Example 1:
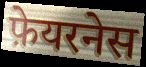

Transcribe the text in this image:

फ़ेयरनेस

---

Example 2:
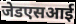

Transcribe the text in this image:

जेडएसआई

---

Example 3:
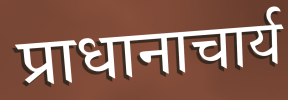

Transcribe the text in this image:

प्राधानाचार्य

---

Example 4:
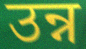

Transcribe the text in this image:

उन्न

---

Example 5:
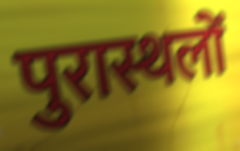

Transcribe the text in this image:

पुरास्थलों